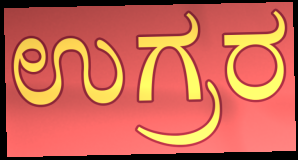
ಉಗ್ರರ